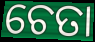
ଚେତା